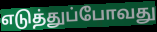
எடுத்துப்போவது